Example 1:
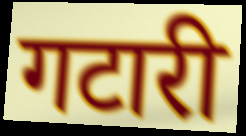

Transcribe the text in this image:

गटारी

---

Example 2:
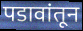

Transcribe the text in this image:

पडावांतून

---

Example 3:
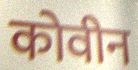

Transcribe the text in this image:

कोवीन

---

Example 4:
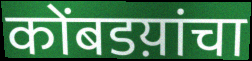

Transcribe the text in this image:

कोंबडय़ांचा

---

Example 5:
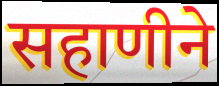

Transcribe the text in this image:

सहाणीने